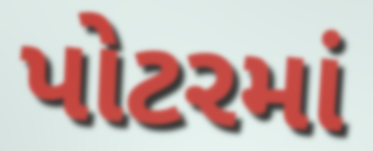
પોટરમાં